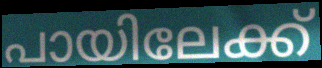
പായിലേക്ക്